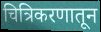
चित्रिकरणातून